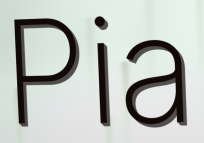
Pia